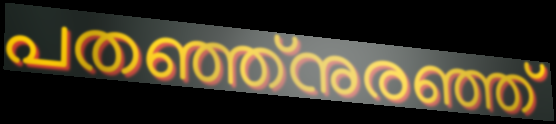
പതഞ്ഞ്നുരഞ്ഞ്